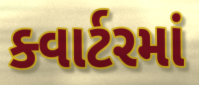
ક્વાર્ટરમાં